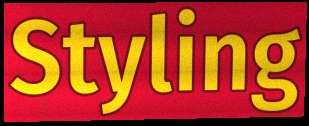
Styling